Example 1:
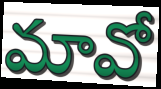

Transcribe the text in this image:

మావో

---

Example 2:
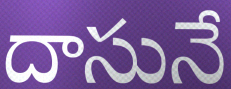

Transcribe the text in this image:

దాసునే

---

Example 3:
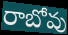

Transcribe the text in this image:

రాబోవు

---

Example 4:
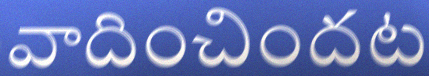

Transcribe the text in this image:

వాదించిందట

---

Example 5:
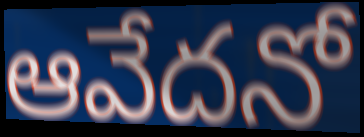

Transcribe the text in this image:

ఆవేదనో